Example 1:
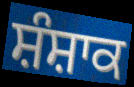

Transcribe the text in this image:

ਸ਼ੰਸ਼ਾਕ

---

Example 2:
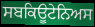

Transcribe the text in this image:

ਸਬਕਿਊਟੇਨਿਅਸ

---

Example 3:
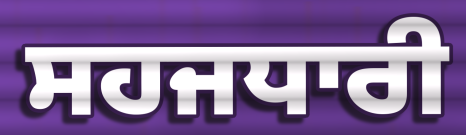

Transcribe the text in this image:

ਸਹਜਧਾਰੀ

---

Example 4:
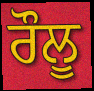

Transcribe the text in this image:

ਰੌਲੂ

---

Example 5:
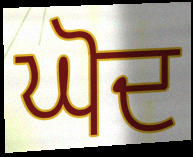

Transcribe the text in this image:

ਘੋਦ